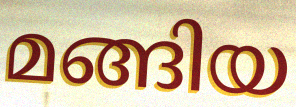
മങ്ങിയ